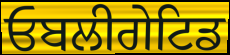
ਓਬਲੀਗੇਟਿਡ